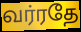
வர்ரதே